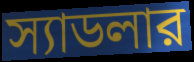
স্যাডলার